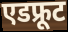
एडफ्रूट